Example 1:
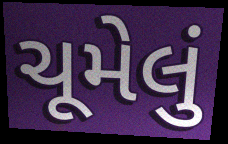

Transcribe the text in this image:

ચૂમેલું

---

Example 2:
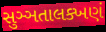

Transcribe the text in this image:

સુઞ્ઞતાલક્ખણં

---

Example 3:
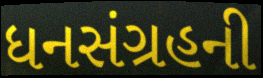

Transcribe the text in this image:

ધનસંગ્રહની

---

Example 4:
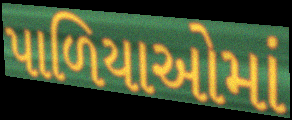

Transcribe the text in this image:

પાળિયાઓમાં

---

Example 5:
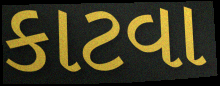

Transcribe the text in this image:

કાટવા